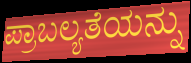
ಪ್ರಾಬಲ್ಯತೆಯನ್ನು